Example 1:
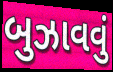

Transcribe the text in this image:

બુઝાવવું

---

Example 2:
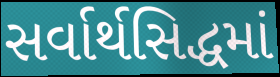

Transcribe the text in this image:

સર્વાર્થસિદ્ધમાં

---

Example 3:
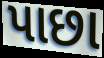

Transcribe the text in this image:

પાછા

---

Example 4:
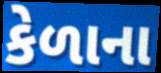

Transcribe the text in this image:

કેળાના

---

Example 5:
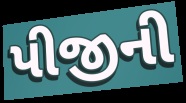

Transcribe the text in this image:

પીજીની